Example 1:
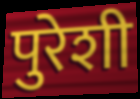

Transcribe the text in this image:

पुरेशी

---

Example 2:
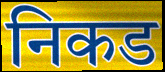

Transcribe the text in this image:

निकड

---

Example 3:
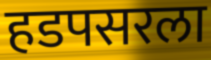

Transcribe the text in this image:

हडपसरला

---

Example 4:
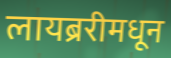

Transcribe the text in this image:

लायब्ररीमधून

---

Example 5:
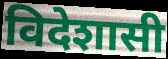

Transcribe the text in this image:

विदेशासी